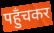
पहुँचकर